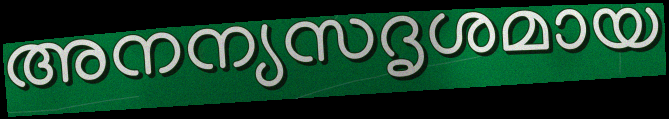
അനന്യസദൃശമായ